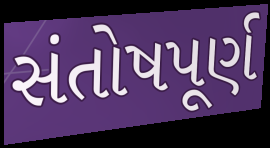
સંતોષપૂર્ણ